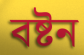
বষ্টন